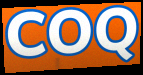
COQ